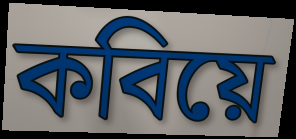
কবিয়ে